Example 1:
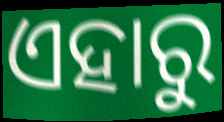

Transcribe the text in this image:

ଏହାରୁ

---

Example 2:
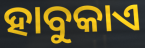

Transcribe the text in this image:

ହାବୁକାଏ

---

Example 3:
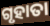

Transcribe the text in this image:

ଗୃହାତା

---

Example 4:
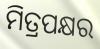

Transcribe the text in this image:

ମିତ୍ରପକ୍ଷର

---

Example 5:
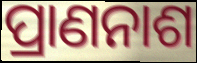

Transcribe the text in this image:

ପ୍ରାଣନାଶ